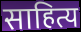
साहित्य